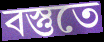
বস্তুতে